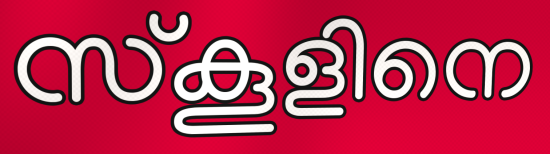
സ്കൂളിനെ